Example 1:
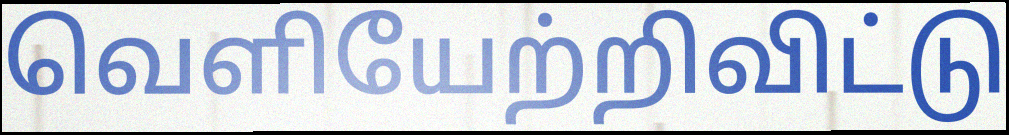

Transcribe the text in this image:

வெளியேற்றிவிட்டு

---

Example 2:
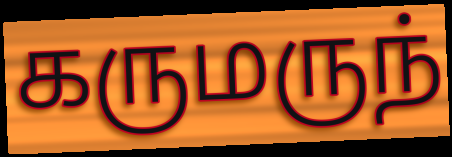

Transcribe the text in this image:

கருமருந்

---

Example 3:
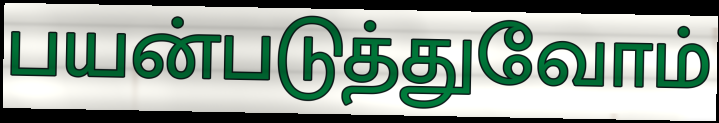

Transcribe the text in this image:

பயன்படுத்துவோம்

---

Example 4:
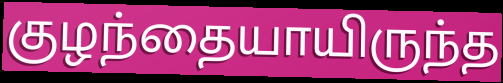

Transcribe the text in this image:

குழந்தையாயிருந்த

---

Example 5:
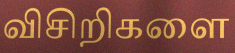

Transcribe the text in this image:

விசிறிகளை